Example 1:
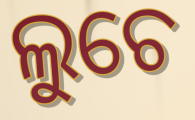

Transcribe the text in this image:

ଲୁଚେ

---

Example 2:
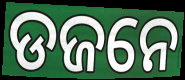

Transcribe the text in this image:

ଡଜନେ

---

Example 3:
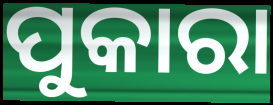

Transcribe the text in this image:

ପୁକାରା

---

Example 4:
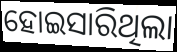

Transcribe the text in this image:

ହୋଇସାରିଥିଲା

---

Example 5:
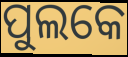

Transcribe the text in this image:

ପୁଲକେ